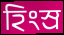
হিংস্র